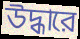
উদ্ধারে